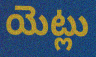
యెట్లు